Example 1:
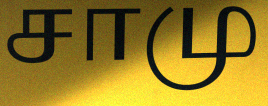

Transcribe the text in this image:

சாமு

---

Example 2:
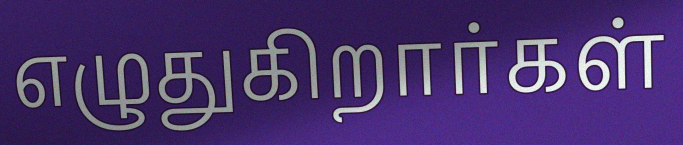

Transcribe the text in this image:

எழுதுகிறார்கள்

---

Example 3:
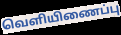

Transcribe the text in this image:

வெளியிணைப்பு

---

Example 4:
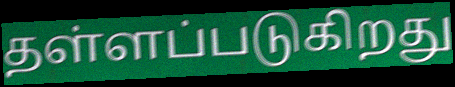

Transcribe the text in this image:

தள்ளப்படுகிறது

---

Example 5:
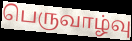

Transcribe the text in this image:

பெருவாழ்வு